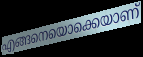
എങ്ങനെയൊക്കെയാണ്